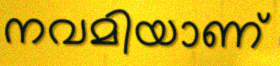
നവമിയാണ്